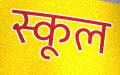
स्‍कूल